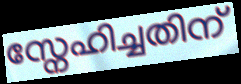
സ്നേഹിച്ചതിന്